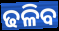
ଢଳିବ